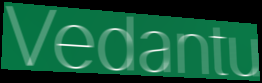
Vedantu